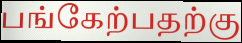
பங்கேற்பதற்கு